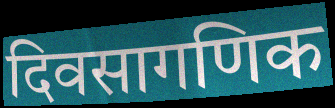
दिवसागणिक